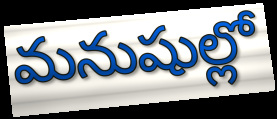
మనుషుల్లో